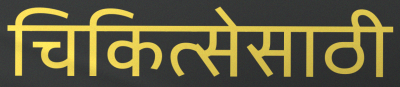
चिकित्सेसाठी